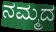
ನಮ್ಮದ